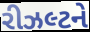
રીઝલ્ટને